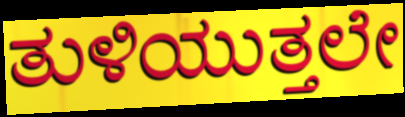
ತುಳಿಯುತ್ತಲೇ